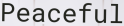
Peaceful